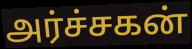
அர்ச்சகன்